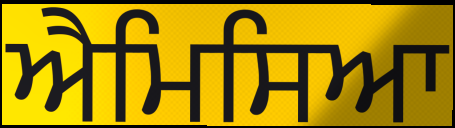
ਐਮਿਸਿਆ